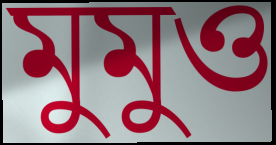
মুমুও